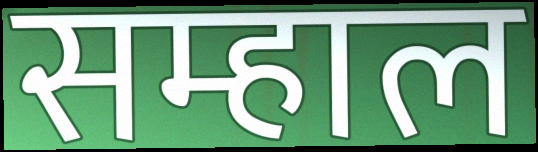
सम्हाल